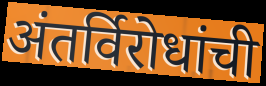
अंतर्विरोधांची